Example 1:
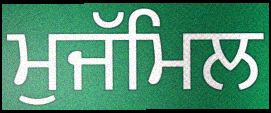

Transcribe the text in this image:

ਮੁਜੱਮਿਲ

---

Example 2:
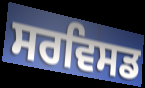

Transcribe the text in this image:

ਸਰਵਿਸਡ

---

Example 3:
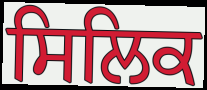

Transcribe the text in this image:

ਸਿਲਿਕ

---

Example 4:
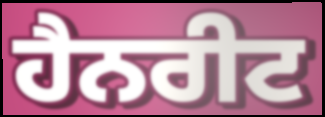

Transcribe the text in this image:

ਹੈਨਰੀਟ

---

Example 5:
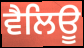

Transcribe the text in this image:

ਵੈਲਿਊ